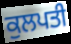
ਕੁਲਪਤੀ